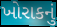
ખોરાકનું